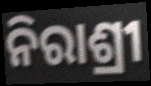
ନିରାଶ୍ରୀ